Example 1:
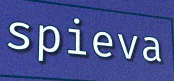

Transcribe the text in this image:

spieva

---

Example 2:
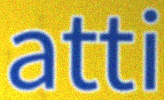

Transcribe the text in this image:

atti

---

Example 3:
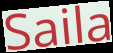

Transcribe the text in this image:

Saila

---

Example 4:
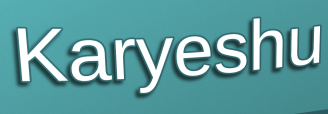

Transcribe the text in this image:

Karyeshu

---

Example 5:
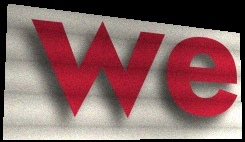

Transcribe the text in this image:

we